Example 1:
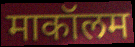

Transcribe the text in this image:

माकॉलम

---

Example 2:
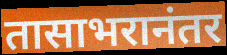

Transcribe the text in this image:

तासाभरानंतर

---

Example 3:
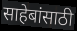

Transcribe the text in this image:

साहेबांसाठी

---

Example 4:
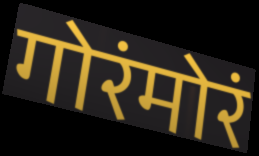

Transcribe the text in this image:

गोरंमोरं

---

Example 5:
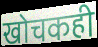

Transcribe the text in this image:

खोचकही